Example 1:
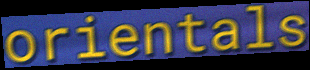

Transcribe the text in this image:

orientals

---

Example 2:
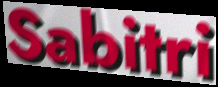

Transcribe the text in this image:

Sabitri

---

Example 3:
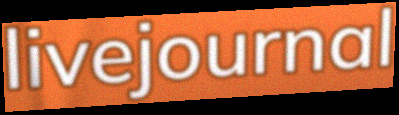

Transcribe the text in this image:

livejournal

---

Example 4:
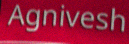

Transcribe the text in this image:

Agnivesh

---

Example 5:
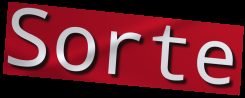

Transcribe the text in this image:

Sorte